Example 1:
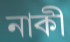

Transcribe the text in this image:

নাকী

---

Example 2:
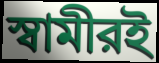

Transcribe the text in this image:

স্বামীরই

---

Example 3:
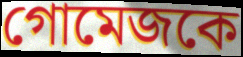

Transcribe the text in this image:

গোমেজকে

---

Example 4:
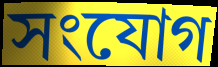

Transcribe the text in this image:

সংযোগ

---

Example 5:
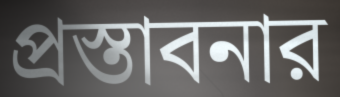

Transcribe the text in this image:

প্রস্তাবনার